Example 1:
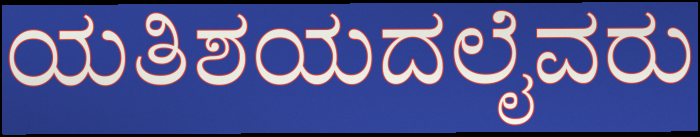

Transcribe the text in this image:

ಯತಿಶಯದಲೈವರು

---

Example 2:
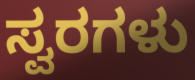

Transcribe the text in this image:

ಸ್ವರಗಳು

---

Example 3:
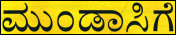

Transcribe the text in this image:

ಮುಂಡಾಸಿಗೆ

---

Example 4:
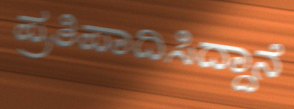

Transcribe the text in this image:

ಪ್ರತಿಪಾದಿಸಿದ್ದಾನೆ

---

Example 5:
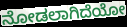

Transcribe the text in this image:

ನೋಡಲಾಗಿದೆಯೋ